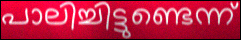
പാലിച്ചിട്ടുണ്ടെന്ന്